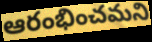
ఆరంభించమని